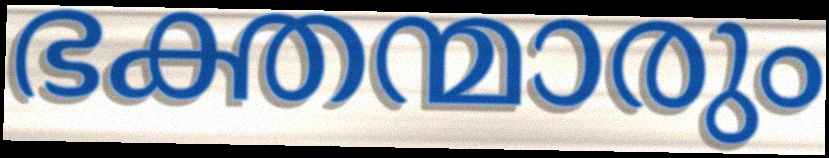
ഭക്തന്മാരും